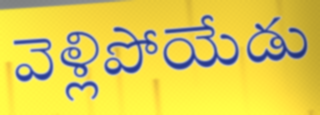
వెళ్లిపోయేడు